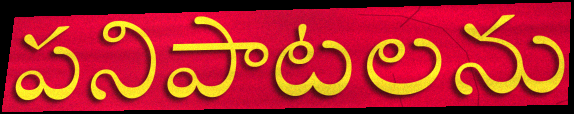
పనిపాటలను